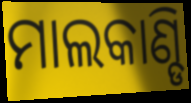
ମାଲକାଣ୍ଡି